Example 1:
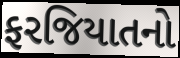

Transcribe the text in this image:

ફરજિયાતનો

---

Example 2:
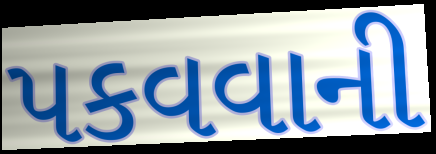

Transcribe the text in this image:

પકવવાની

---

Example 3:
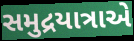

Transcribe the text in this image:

સમુદ્રયાત્રાએ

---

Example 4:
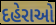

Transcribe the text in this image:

દહેરાઓ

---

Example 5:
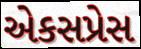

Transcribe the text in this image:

એકસપ્રેસ